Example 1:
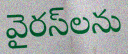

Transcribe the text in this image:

వైరస్‌లను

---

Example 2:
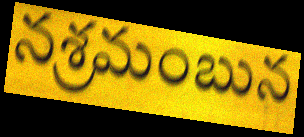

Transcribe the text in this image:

నశ్రమంబున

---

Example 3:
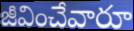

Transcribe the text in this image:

జీవించేవారూ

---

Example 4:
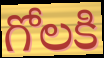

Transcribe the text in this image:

గోలకి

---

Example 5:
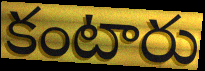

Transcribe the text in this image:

కంటారు